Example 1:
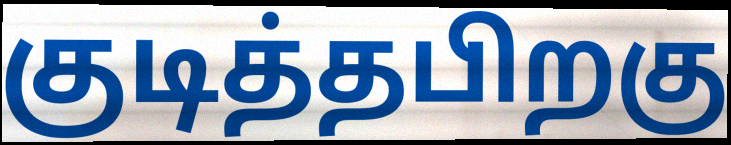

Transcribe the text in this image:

குடித்தபிறகு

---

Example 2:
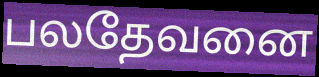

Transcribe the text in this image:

பலதேவனை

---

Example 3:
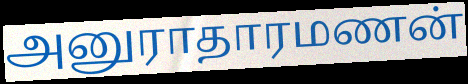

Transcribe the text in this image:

அனுராதாரமணன்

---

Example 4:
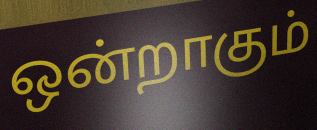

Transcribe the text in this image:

ஒன்றாகும்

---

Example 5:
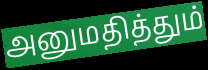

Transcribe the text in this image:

அனுமதித்தும்